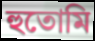
হুতোমি